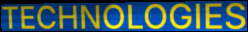
TECHNOLOGIES